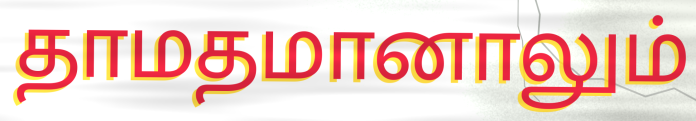
தாமதமானாலும்